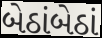
બેઠાંબેઠાં